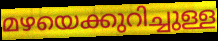
മഴയെക്കുറിച്ചുള്ള